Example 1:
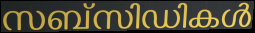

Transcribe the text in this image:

സബ്സിഡികൾ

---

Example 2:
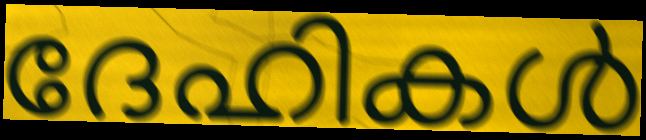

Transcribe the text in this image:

ദേഹികൾ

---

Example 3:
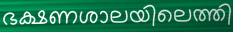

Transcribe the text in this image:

ഭക്ഷണശാലയിലെത്തി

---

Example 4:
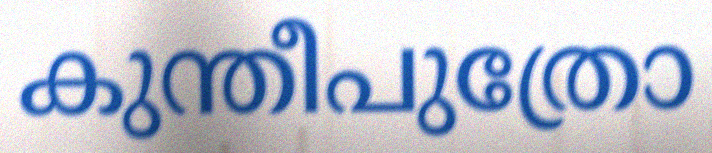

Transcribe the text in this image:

കുന്തീപുത്രോ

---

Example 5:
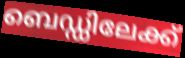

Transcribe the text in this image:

ബെഡ്ഡിലേക്ക്